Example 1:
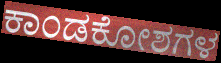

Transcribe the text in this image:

ಕಾಂಡಕೋಶಗಳ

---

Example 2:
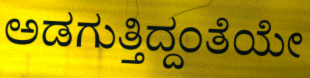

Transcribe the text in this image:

ಅಡಗುತ್ತಿದ್ದಂತೆಯೇ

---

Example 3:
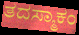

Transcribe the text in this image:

ತದಸ್ಮಾಕಂ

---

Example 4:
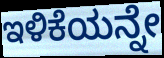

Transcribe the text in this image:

ಇಳಿಕೆಯನ್ನೇ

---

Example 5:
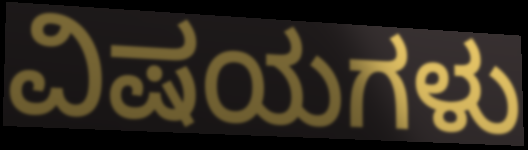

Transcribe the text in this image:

ವಿಷಯಗಳು